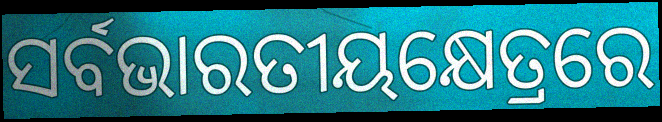
ସର୍ବଭାରତୀୟକ୍ଷେତ୍ରରେ